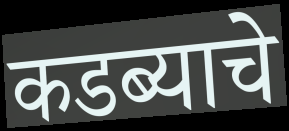
कडब्याचे